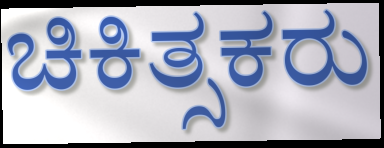
ಚಿಕಿತ್ಸಕರು